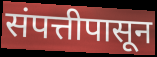
संपत्तीपासून